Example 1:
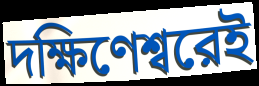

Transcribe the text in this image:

দক্ষিণেশ্বরেই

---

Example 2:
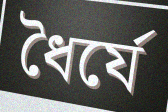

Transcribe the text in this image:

ধৈর্যে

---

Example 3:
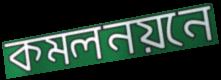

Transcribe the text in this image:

কমলনয়নে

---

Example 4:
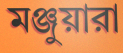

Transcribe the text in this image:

মঞ্জুয়ারা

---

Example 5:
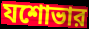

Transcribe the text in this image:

যশোভার